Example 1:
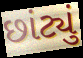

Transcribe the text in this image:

છાંટ્યું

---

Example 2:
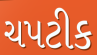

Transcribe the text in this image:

ચપટીક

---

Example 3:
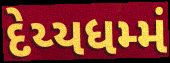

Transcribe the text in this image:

દેય્યધમ્મં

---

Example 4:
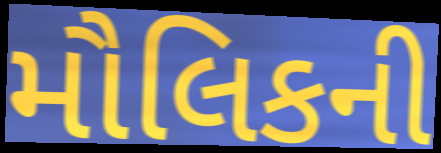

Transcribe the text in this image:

મૌલિકની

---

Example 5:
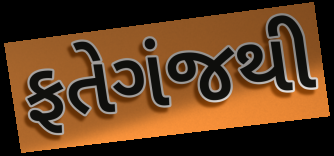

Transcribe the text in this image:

ફતેગંજથી